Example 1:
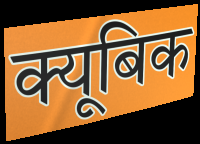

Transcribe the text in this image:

क्यूबिक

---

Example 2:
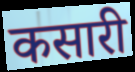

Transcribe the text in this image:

कसारी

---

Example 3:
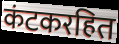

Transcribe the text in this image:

कंटकरहित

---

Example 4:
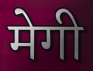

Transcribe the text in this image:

मेगी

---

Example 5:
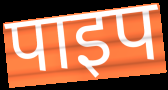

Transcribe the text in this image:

पाइप